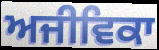
ਅਜੀਵਿਕਾ